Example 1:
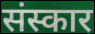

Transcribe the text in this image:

संस्कार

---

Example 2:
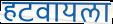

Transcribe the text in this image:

हटवायला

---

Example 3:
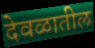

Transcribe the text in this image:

देवळातील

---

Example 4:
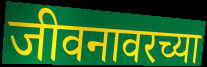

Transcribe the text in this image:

जीवनावरच्या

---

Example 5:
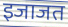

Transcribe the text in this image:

इजाजत